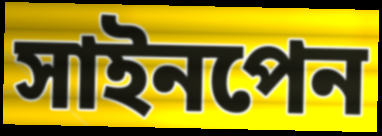
সাইনপেন